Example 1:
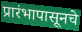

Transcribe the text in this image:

प्रारंभापासूनचे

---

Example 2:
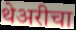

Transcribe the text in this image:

थेअरीचा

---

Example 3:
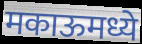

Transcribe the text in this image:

मकाऊमध्ये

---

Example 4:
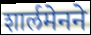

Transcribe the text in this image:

शार्लमेनने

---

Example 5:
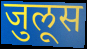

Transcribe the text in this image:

जुलूस